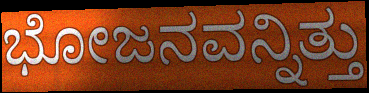
ಭೋಜನವನ್ನಿತ್ತು